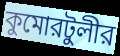
কুমোরটুলীর